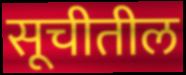
सूचीतील